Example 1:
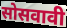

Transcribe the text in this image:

सोसवावी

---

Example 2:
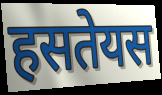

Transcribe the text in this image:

हसतेयस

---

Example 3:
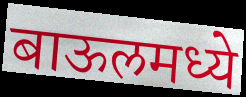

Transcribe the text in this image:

बाऊलमध्ये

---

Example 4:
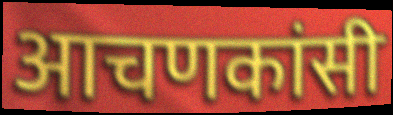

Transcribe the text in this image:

आचणकांसी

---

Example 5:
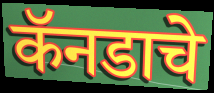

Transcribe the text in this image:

कॅनडाचे